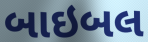
બાઇબલ